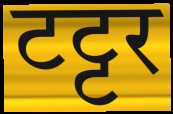
टट्टर